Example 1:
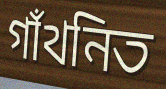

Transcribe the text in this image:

গাঁথনিত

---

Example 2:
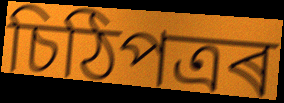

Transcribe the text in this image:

চিঠিপত্ৰৰ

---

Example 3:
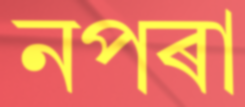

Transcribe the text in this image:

নপৰা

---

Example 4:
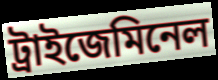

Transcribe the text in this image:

ট্ৰাইজেমিনেল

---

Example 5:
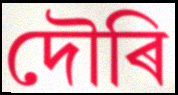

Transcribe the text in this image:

দৌৰি